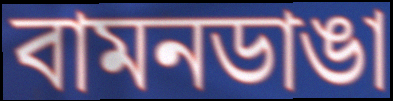
বামনডাঙা